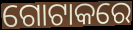
ଗୋଟାକରେ